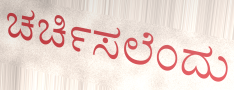
ಚರ್ಚಿಸಲೆಂದು